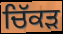
ਚਿੱਕੜ